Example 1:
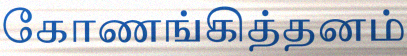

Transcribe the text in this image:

கோணங்கித்தனம்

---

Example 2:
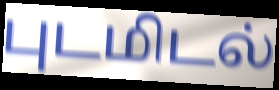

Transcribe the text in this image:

புடமிடல்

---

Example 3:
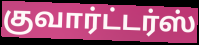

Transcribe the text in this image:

குவார்ட்டர்ஸ்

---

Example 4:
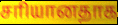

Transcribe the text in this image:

சரியானதாக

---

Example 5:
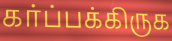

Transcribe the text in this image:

கர்ப்பக்கிருக